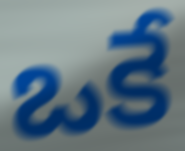
ఒకే